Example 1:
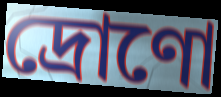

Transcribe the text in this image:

দ্রোণো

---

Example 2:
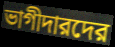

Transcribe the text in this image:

ভাগীদারদের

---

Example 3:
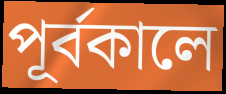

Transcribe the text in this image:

পূর্বকালে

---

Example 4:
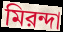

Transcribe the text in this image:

মিরন্দা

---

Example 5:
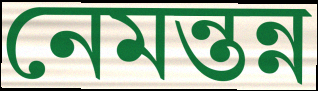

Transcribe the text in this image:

নেমন্তন্ন